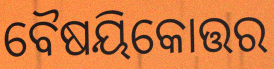
ବୈଷୟିକୋତ୍ତର